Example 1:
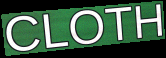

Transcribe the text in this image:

CLOTH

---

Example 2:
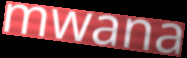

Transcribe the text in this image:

mwana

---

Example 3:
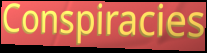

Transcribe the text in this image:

Conspiracies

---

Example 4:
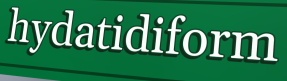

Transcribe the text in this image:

hydatidiform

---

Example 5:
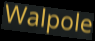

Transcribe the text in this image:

Walpole